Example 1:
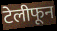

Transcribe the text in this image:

टेलीफून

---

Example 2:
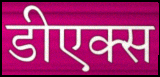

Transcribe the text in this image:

डीएक्स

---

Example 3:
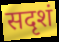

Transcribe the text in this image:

सदृशं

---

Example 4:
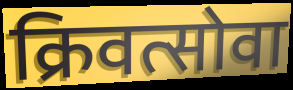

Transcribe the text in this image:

क्रिवत्सोवा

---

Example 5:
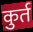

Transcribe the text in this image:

कुर्त